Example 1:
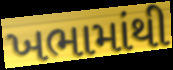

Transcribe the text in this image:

ખભામાંથી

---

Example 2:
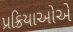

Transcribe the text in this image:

પ્રક્રિયાઓએ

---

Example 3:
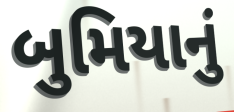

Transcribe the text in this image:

બુમિયાનું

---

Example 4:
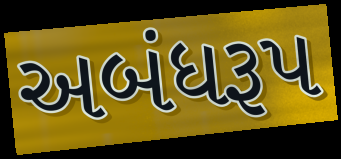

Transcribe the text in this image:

અબંધરૂપ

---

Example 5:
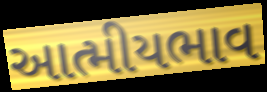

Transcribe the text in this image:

આત્મીયભાવ